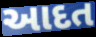
આદત